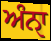
ਅੰਨੑਾ